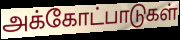
அக்கோட்பாடுகள்